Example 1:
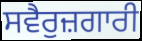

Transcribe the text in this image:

ਸਵੈਰੁਜ਼ਗਾਰੀ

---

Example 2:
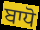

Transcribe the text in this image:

ਬਾਧੋ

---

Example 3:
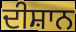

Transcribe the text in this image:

ਦੀਸ਼ਾਨ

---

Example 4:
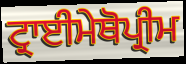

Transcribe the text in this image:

ਟ੍ਰਾਈਮੇਥੋਪ੍ਰੀਮ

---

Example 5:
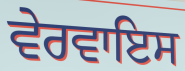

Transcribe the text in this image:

ਵੇਰਵਾਇਸ